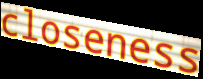
closeness